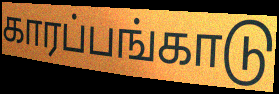
காரப்பங்காடு